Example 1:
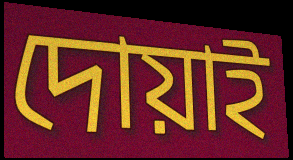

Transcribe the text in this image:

দোয়াই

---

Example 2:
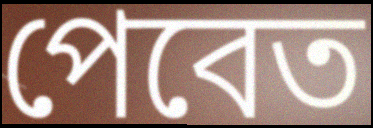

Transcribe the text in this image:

পেবেত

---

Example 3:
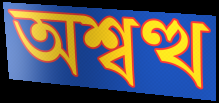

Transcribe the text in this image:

অশ্বত্থ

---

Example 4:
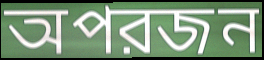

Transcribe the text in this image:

অপরজন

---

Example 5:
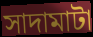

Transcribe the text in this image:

সাদামাটা